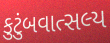
કુટુંબવાત્સલ્ય